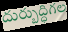
దుర్బుద్ధిగల